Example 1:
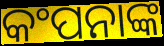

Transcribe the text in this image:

କଂପନାଙ୍କ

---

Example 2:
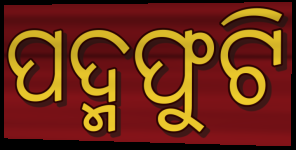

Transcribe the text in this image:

ପଦ୍ମଫୁଟି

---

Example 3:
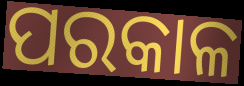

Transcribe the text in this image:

ପରକାଳ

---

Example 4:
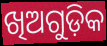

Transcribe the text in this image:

ଖିଅଗୁଡ଼ିକ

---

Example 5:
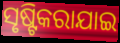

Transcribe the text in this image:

ସୃଷ୍ଟିକରାଯାଇ